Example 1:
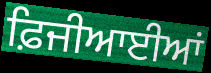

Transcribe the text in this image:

ਫ਼ਿਜੀਆਈਆਂ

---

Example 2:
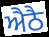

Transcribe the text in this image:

ਐਠੈ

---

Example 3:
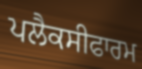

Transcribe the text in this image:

ਪਲੈਕਸੀਫਾਰਮ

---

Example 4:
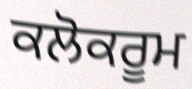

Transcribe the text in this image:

ਕਲੋਕਰੂਮ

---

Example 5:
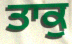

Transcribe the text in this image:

ਤਾਕੁ